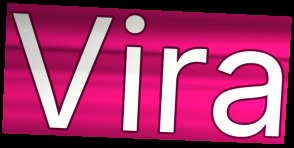
Vira